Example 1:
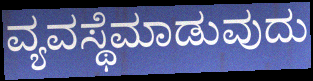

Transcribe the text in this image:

ವ್ಯವಸ್ಥೆಮಾಡುವುದು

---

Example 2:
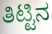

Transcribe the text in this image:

ತಿಟ್ಟಿನ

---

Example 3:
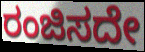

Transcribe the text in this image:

ರಂಜಿಸದೇ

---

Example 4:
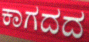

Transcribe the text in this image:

ಕಾಗದದ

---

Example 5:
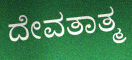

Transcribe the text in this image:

ದೇವತಾತ್ಮ